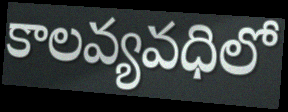
కాలవ్యవధిలో